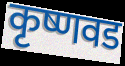
कृष्णवड